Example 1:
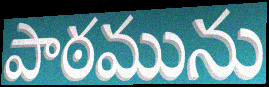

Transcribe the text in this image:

పాఠమును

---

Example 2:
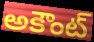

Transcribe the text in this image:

అకౌంట్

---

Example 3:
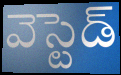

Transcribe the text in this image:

వెస్టెడ్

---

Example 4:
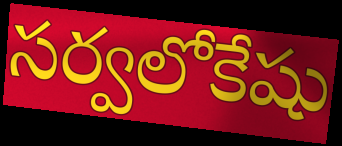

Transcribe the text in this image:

సర్వలోకేషు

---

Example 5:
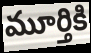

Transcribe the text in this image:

మూర్తికి